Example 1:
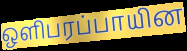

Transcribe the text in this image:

ஒளிபரப்பாயின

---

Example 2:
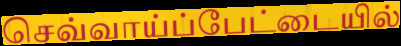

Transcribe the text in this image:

செவ்வாய்ப்பேட்டையில்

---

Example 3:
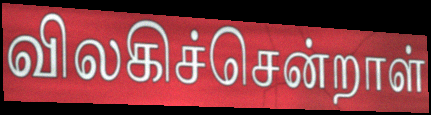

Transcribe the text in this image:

விலகிச்சென்றாள்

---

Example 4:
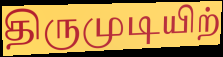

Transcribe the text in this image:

திருமுடியிற்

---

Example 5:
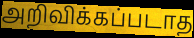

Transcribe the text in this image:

அறிவிக்கப்படாத